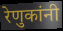
रेणुकांनी